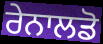
ਰੇਨਾਲਡੋ